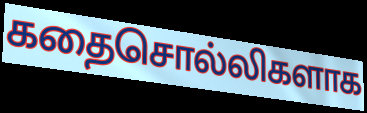
கதைசொல்லிகளாக